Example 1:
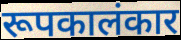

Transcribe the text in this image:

रूपकालंकार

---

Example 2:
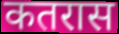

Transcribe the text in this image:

कतरास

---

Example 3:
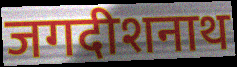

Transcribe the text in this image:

जगदीशनाथ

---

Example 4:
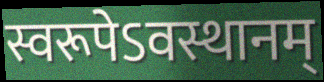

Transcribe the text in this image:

स्वरूपेऽवस्थानम्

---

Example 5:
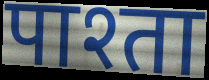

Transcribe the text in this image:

पाश्ता